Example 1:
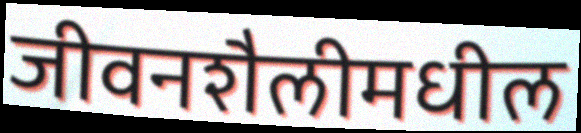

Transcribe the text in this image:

जीवनशैलीमधील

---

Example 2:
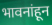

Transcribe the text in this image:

भावनांहून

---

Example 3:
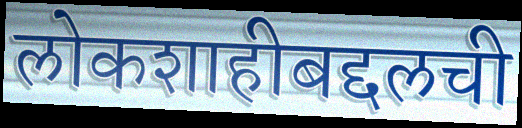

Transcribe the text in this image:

लोकशाहीबद्दलची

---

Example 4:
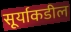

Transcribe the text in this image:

सूर्याकडील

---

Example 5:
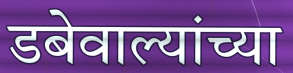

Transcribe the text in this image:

डबेवाल्यांच्या